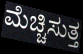
ಮೆಚ್ಚಿಸುತ್ತ